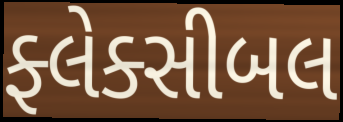
ફ્લેક્સીબલ